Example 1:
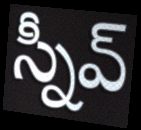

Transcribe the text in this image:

స్నీవ్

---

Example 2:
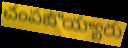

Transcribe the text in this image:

చంపబొయ్యారు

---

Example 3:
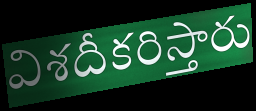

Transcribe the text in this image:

విశదీకరిస్తారు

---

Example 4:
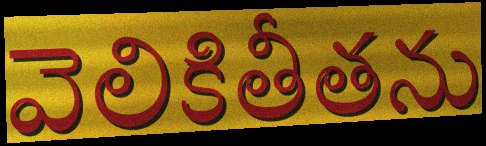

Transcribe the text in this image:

వెలికితీతను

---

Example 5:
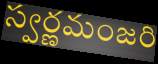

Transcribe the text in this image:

స్వర్ణమంజరి